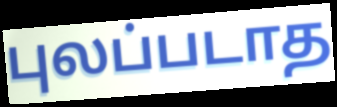
புலப்படாத